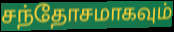
சந்தோசமாகவும்